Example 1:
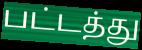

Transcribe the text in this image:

பட்டத்து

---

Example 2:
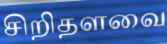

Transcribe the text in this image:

சிறிதளவை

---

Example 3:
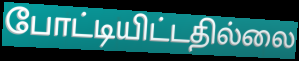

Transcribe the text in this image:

போட்டியிட்டதில்லை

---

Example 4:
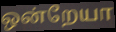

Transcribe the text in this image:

ஒன்றேயா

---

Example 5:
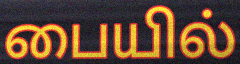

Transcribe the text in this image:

பையில்